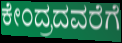
ಕೇಂದ್ರದವರೆಗೆ